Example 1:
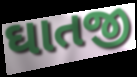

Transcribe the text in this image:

ઘાતજી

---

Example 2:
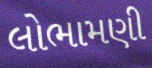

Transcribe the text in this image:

લોભામણી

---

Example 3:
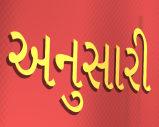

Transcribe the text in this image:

અનુસારી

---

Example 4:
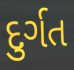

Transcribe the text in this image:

દુર્ગત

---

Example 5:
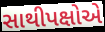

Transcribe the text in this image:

સાથીપક્ષોએ